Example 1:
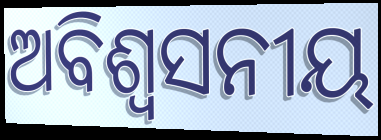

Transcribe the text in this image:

ଅବିଶ୍ବସନୀୟ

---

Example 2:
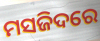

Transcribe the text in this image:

ମସଜିଦରେ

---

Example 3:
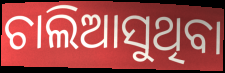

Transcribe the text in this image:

ଚାଲିଆସୁଥିବା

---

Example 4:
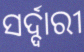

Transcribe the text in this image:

ସର୍ଦ୍ଦାରୀ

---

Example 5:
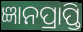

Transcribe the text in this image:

ଜ୍ଞାନପ୍ରାପ୍ତି